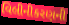
વિલીનીકરણની